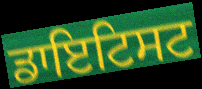
ਡਾਇਟਿਸਟ